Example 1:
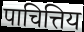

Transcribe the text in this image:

पाचित्तिय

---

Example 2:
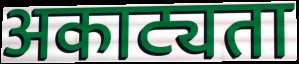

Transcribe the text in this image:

अकाट्यता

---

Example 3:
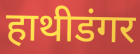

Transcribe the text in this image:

हाथीडंगर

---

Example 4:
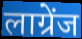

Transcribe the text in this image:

लाग्रेंज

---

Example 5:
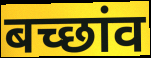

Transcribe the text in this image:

बच्छांव